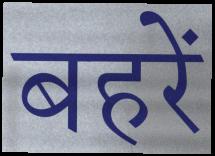
बहरें